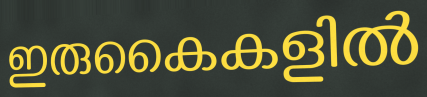
ഇരുകൈകളിൽ